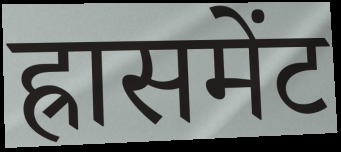
ह्रासमेंट